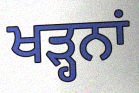
ਖੜ੍ਹਨਾਂ